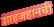
शाहजहानची